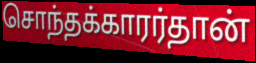
சொந்தக்காரர்தான்